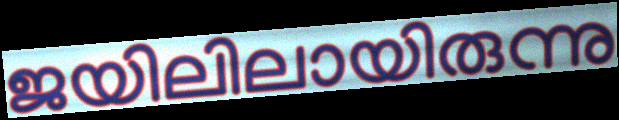
ജയിലിലായിരുന്നു